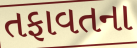
તફાવતના